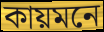
কায়মনে